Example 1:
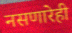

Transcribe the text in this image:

नसणारेही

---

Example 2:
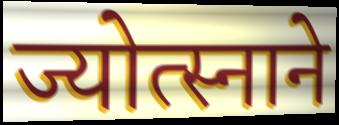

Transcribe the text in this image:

ज्योत्स्नाने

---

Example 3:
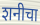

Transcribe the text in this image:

शनीचा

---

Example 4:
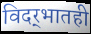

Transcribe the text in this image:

विदर्भातही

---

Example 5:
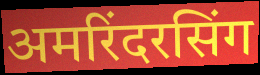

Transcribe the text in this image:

अमरिंदरसिंग